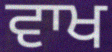
ਵਾਖ